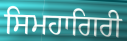
ਸਿਮਹਾਗਿਰੀ